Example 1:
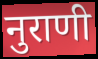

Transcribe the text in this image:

नुराणी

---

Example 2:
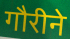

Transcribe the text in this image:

गौरीने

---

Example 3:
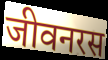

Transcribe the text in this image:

जीवनरस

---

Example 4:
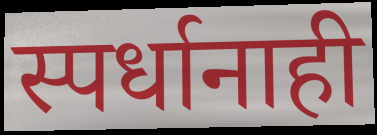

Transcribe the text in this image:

स्पर्धानाही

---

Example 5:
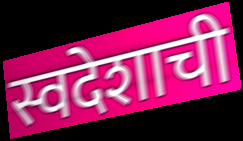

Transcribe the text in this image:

स्वदेशाची